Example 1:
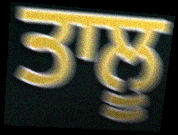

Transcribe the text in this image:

ਤਾਲੂ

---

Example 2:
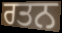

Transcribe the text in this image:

ਰਤਨ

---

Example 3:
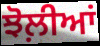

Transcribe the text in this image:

ਝੋਲ਼ੀਆਂ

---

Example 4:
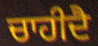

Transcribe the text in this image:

ਚਾਹੀਦੈ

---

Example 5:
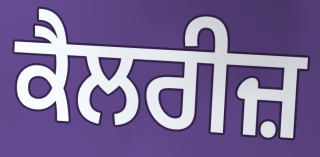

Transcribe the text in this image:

ਕੈਲਰੀਜ਼